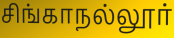
சிங்காநல்லூர்